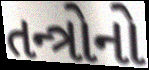
તન્ત્રોનો